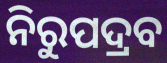
ନିରୁପଦ୍ରବ